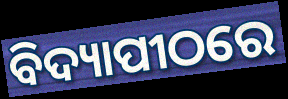
ବିଦ୍ୟାପୀଠରେ